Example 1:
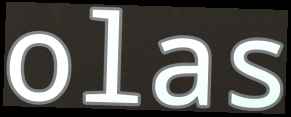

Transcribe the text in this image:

olas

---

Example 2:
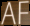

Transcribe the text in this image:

AF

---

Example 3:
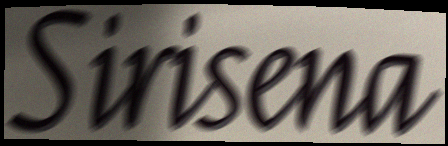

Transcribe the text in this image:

Sirisena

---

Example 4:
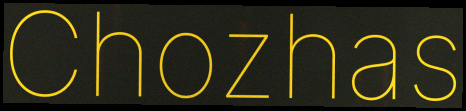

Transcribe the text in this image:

Chozhas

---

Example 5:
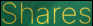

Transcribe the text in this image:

Shares